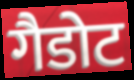
गैडोट